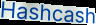
Hashcash